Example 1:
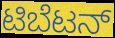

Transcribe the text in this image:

ಟಿಬೆಟನ್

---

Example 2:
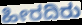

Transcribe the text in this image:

ಹೀರದಿರು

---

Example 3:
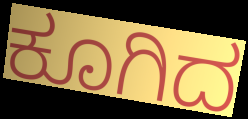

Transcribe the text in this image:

ಕೂಗಿದ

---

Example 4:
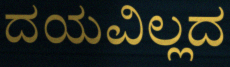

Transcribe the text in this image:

ದಯವಿಲ್ಲದ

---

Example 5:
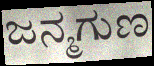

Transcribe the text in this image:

ಜನ್ಮಗುಣ